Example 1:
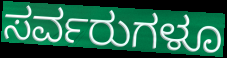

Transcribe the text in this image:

ಸರ್ವರುಗಳೂ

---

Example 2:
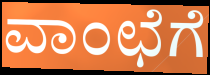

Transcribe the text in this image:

ವಾಂಛೆಗೆ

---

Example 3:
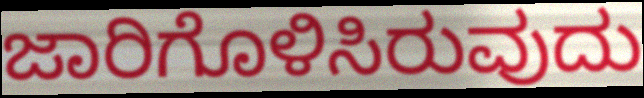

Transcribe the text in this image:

ಜಾರಿಗೊಳಿಸಿರುವುದು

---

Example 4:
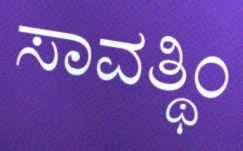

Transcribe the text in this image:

ಸಾವತ್ಥಿಂ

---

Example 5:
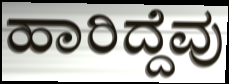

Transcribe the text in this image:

ಹಾರಿದ್ದೆವು